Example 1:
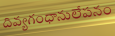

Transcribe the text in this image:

దివ్యగంధానులేపనం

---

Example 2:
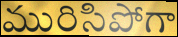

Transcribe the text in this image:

మురిసిపోగా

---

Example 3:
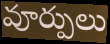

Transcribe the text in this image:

వూర్పులు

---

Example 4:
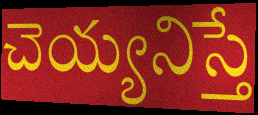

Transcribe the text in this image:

చెయ్యనిస్తే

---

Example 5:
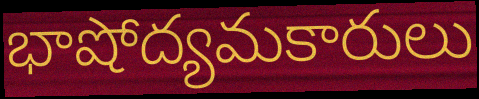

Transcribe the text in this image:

భాషోద్యమకారులు